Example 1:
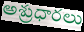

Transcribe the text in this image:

అశ్రుధారలు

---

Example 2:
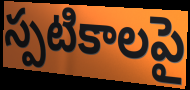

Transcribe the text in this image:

స్పటికాలపై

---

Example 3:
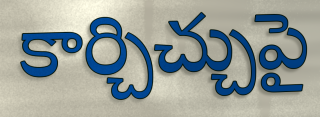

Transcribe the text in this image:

కార్చిచ్చుపై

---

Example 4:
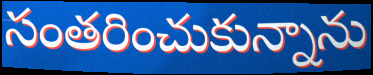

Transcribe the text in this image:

సంతరించుకున్నాను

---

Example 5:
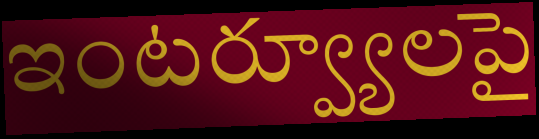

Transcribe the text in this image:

ఇంటర్వ్యూలపై